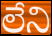
లేని